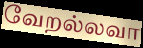
வேறல்லவா